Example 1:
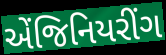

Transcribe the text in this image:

એંજિનિયરીંગ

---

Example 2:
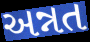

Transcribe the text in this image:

અન્નત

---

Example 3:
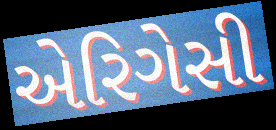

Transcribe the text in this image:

એરિગેસી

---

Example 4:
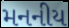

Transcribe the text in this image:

મનનીય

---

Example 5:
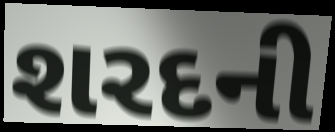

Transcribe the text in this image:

શરદની